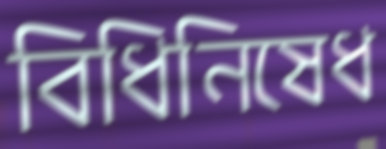
বিধিনিষেধ